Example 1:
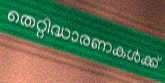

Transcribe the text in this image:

തെറ്റിദ്ധാരണകൾക്ക്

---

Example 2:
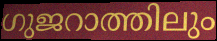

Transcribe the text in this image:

ഗുജറാത്തിലും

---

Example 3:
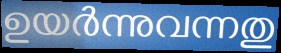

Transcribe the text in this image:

ഉയർന്നുവന്നതു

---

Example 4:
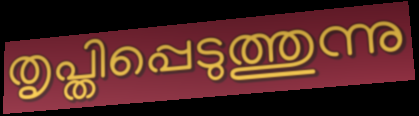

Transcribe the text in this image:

തൃപ്തിപ്പെടുത്തുന്നു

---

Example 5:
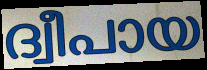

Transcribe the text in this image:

ദ്വീപായ